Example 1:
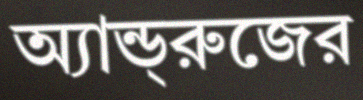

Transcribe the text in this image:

অ্যান্ড্‌রুজের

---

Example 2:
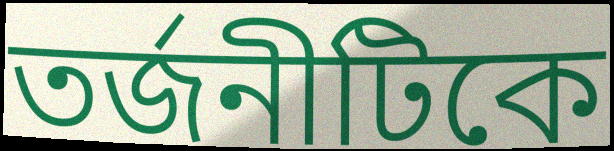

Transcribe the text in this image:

তর্জনীটিকে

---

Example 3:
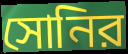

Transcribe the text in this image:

সোনির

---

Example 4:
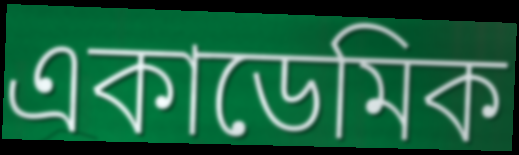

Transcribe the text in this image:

একাডেমিক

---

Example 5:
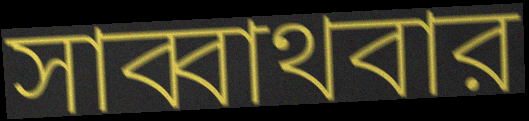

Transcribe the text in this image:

সাব্বাথবার